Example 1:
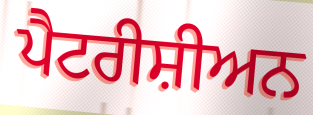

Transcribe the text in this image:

ਪੈਟਰੀਸ਼ੀਅਨ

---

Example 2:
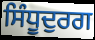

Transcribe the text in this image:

ਸਿੰਧੂਦੁਰਗ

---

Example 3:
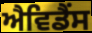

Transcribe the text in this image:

ਐਵਿਡੈਂਸ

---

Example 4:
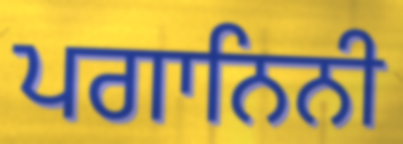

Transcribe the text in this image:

ਪਗਾਨਿਨੀ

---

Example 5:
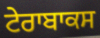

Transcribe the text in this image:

ਟੇਰਾਬਾਕਸ